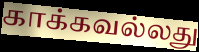
காக்கவல்லது